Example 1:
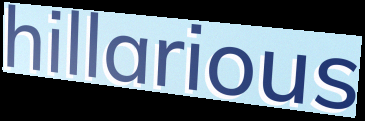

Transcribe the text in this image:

hillarious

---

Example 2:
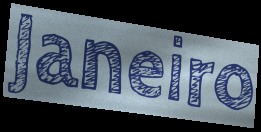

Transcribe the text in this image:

Janeiro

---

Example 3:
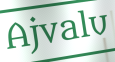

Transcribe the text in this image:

Ajvalu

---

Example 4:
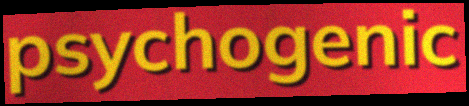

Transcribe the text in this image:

psychogenic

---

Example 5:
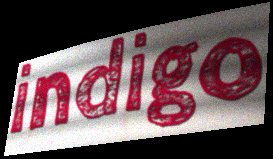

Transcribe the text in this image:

indigo